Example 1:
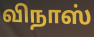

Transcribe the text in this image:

விநாஸ்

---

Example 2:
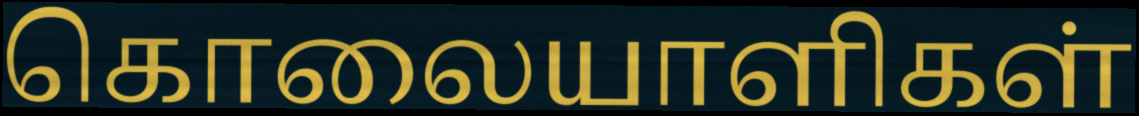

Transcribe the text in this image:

கொலையாளிகள்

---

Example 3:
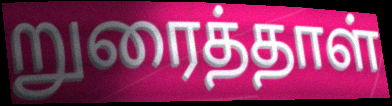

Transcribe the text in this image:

றுரைத்தாள்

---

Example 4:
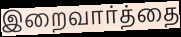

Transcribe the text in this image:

இறைவார்த்தை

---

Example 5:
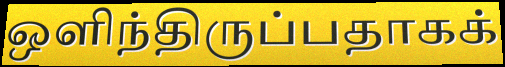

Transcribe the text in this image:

ஒளிந்திருப்பதாகக்